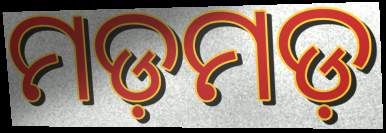
ମଡ଼ମଡ଼